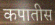
कपातीस